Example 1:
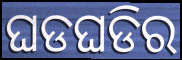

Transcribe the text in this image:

ଘଡଘଡିର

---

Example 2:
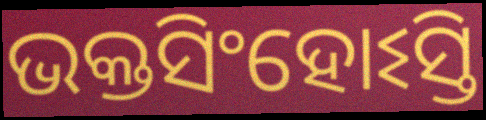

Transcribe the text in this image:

ଭକ୍ତସିଂହୋଽସ୍ତି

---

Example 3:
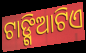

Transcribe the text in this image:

ଟାଙ୍ଗିଆଟିଏ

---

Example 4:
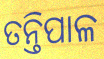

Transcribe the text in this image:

ତନ୍ତିପାଳ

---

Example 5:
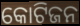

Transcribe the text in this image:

କୋଟିଜନ